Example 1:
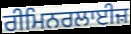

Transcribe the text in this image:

ਰੀਮਿਨਰਲਾਈਜ਼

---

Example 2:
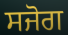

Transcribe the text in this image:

ਸਜੋਗ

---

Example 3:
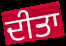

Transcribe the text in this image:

ਦੀਤਾ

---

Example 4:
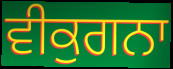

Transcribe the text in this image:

ਵੀਕੁਗਨਾ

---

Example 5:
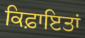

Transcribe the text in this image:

ਕਿਫ਼ਾਇਤਾਂ